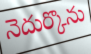
నెదుర్కొను